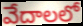
వేదాలలో